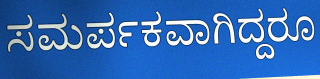
ಸಮರ್ಪಕವಾಗಿದ್ದರೂ